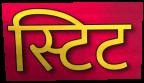
स्टिट